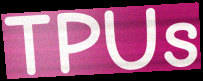
TPUs